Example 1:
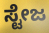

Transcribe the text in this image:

ಸ್ಟೇಜ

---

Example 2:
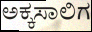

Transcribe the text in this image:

ಅಕ್ಕಸಾಲಿಗ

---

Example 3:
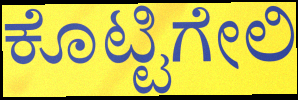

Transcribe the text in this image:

ಕೊಟ್ಟಿಗೇಲಿ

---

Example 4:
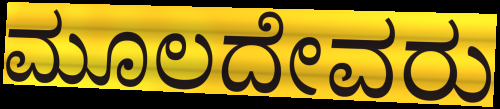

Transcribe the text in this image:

ಮೂಲದೇವರು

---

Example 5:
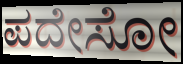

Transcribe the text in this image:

ಪದೇಸೋ